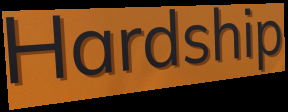
Hardship